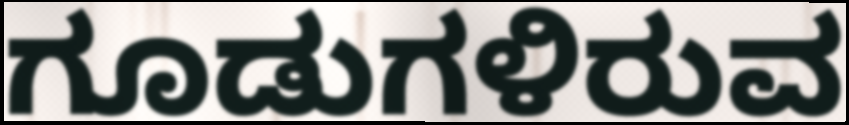
ಗೂಡುಗಳಿರುವ